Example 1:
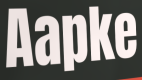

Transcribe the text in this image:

Aapke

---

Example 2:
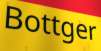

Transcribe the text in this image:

Bottger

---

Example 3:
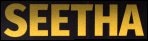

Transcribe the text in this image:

SEETHA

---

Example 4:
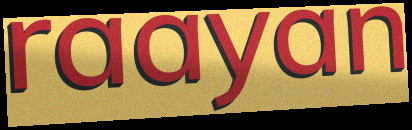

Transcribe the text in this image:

raayan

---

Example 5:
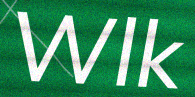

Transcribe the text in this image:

Wlk